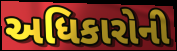
અધિકારોની